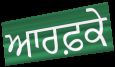
ਆਰਫ਼ਕੇ